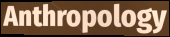
Anthropology